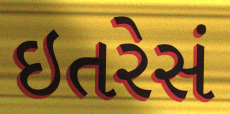
ઇતરેસં